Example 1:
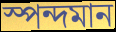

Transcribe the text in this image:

স্পন্দমান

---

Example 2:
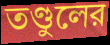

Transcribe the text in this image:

তণ্ডুলের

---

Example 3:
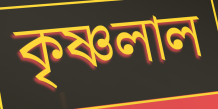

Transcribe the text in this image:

কৃষ্ণলাল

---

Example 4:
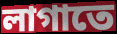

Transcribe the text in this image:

লাগাতে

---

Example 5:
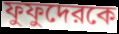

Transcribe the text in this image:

ফুফুদেরকে